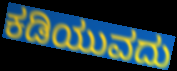
ಕಡಿಯುವದು